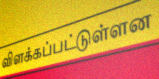
விளக்கப்பட்டுள்ளன